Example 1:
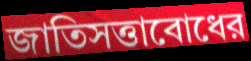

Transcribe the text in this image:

জাতিসত্তাবোধের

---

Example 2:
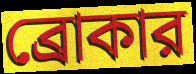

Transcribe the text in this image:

ব্রোকার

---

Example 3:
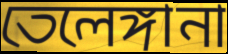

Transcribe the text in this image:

তেলেঙ্গানা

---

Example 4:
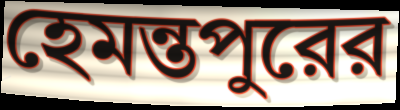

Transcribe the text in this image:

হেমন্তপুরের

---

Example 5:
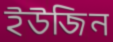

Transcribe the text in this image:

ইউজিন